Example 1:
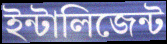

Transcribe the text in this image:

ইন্টালিজেন্ট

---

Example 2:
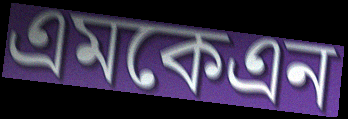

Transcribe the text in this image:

এমকেএন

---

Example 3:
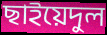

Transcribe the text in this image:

ছাইয়েদুল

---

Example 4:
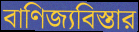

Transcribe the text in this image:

বাণিজ্যবিস্তার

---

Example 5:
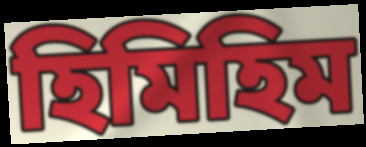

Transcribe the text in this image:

হিমিহিম